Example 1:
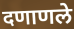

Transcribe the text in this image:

दणाणले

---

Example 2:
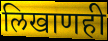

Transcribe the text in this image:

लिखाणही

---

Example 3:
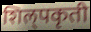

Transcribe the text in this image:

शिल्पकृती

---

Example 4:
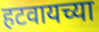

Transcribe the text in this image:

हटवायच्या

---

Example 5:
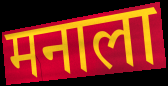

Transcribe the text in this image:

मनाला